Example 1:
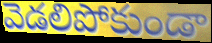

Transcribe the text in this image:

వెడలిపోకుండా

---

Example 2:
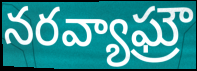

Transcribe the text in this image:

నరవ్యాఘ్రౌ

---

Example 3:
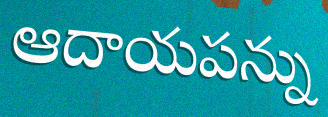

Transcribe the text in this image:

ఆదాయపన్ను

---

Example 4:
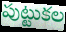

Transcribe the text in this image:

పుట్టుకల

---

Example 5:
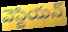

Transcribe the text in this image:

వెస్టియన్